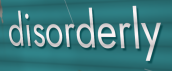
disorderly